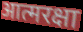
आत्मरक्षा